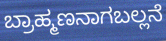
ಬ್ರಾಹ್ಮಣನಾಗಬಲ್ಲನೆ